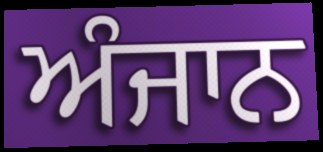
ਅੰਜਾਨ